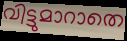
വിട്ടുമാറാതെ